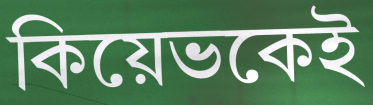
কিয়েভকেই